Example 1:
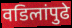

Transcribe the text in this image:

वडिलांपुढे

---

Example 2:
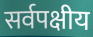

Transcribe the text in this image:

सर्वपक्षीय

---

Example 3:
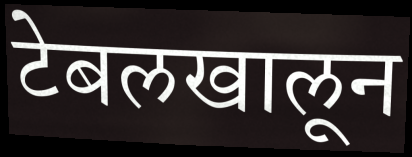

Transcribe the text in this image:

टेबलखालून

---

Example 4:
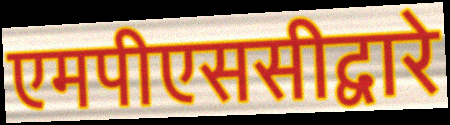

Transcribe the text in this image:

एमपीएससीद्वारे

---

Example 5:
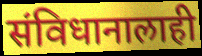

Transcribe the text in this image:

संविधानालाही